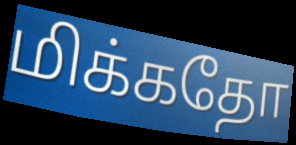
மிக்கதோ